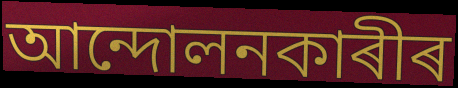
আন্দোলনকাৰীৰ